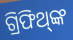
ଗ୍ରିଫିଥ୍‌ଙ୍କ